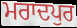
ਮਰਾਦਪੁਰ